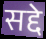
सद्दे